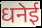
धनेई